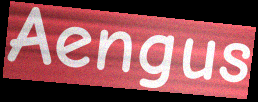
Aengus